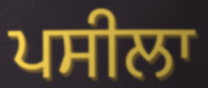
ਪਸੀਲਾ